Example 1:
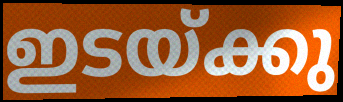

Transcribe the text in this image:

ഇടയ്ക്കു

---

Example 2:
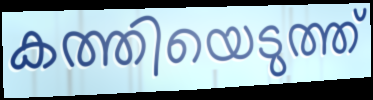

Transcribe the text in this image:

കത്തിയെടുത്ത്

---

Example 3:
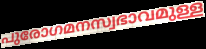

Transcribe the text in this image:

പുരോഗമനസ്വഭാവമുള്ള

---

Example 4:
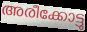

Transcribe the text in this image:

അരീക്കോട്ടു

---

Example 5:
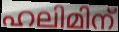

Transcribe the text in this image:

ഹലിമിന്